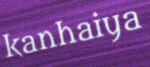
kanhaiya